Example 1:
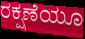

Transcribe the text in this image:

ರಕ್ಷಣೆಯೂ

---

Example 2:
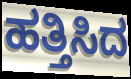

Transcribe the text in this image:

ಹತ್ತಿಸಿದ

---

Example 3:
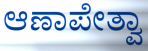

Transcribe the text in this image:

ಆಣಾಪೇತ್ವಾ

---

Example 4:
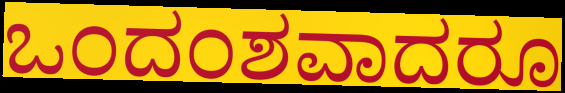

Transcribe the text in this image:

ಒಂದಂಶವಾದರೂ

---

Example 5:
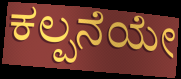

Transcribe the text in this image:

ಕಲ್ಪನೆಯೇ